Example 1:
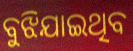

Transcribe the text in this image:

ବୁଝିଯାଇଥିବ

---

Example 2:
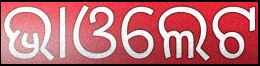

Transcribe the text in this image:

ଭାଓଲେଟ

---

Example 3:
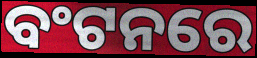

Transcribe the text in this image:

ବଂଟନରେ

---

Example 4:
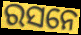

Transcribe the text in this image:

ରସନେ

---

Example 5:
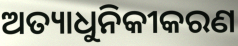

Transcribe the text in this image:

ଅତ୍ୟାଧୁନିକୀକରଣ